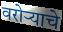
वरोऱ्याचे